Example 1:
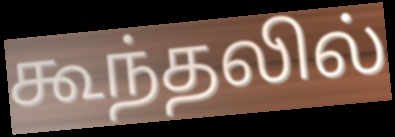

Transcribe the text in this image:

கூந்தலில்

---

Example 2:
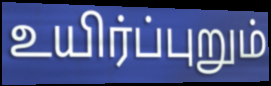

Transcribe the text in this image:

உயிர்ப்புறும்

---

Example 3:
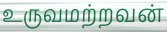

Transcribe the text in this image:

உருவமற்றவன்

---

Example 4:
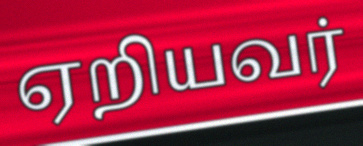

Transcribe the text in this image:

ஏறியவர்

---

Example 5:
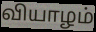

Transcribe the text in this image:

வியாழம்